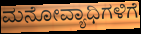
ಮನೋವ್ಯಾಧಿಗಳಿಗೆ